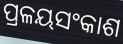
ପ୍ରଳୟସଂକାଶ